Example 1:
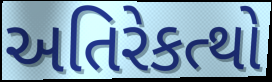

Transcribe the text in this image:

અતિરેકત્થો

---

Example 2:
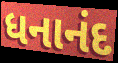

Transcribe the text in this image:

ધનાનંદ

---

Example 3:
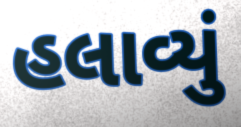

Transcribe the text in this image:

હલાવ્યું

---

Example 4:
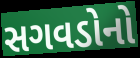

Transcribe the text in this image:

સગવડોનો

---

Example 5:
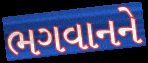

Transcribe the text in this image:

ભગવાનને